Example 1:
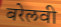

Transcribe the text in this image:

बरेलवी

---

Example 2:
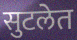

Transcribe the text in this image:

सुटलेत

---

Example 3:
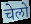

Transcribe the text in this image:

चेलो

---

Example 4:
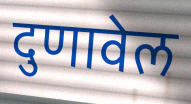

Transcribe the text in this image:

दुणावेल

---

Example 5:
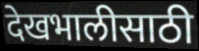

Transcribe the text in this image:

देखभालीसाठी